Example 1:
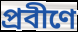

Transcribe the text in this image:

প্রবীণে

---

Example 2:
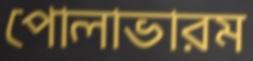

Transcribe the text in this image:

পোলাভারম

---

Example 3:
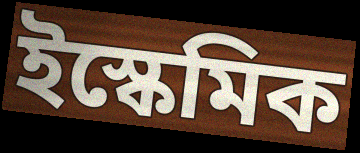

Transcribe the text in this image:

ইস্কেমিক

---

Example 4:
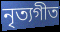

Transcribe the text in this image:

নৃত্যগীত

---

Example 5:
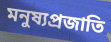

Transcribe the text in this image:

মনুষ্যপ্রজাতি